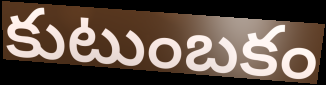
కుటుంబకం